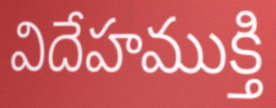
విదేహముక్తి